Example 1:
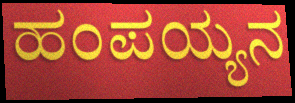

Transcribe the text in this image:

ಹಂಪಯ್ಯನ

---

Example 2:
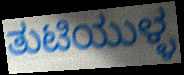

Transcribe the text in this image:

ತುಟಿಯುಳ್ಳ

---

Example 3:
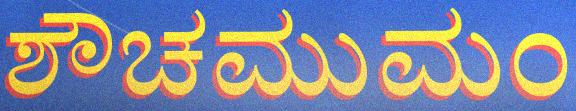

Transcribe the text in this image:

ಶೌಚಮುಮಂ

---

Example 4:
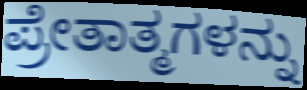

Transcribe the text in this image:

ಪ್ರೇತಾತ್ಮಗಳನ್ನು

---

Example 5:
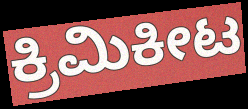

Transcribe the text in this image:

ಕ್ರಿಮಿಕೀಟ